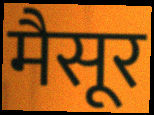
मैसूर